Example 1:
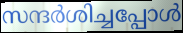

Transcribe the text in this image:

സന്ദർശിച്ചപ്പോൾ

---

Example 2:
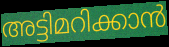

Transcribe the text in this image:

അട്ടിമറിക്കാൻ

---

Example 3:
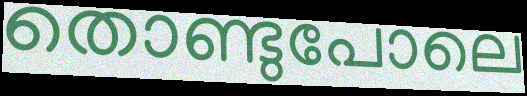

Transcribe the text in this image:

തൊണ്ടുപോലെ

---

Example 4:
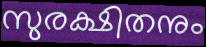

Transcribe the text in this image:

സുരക്ഷിതനും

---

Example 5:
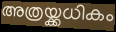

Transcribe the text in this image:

അത്രയ്ക്കധികം